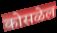
कोसळेल